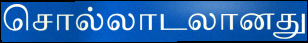
சொல்லாடலானது